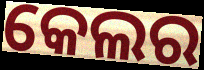
କେଲର